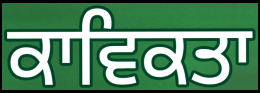
ਕਾਵਿਕਤਾ